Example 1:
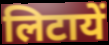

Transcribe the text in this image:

लिटायें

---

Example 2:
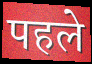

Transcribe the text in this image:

पहले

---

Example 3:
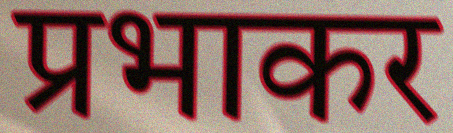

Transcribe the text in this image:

प्रभाकर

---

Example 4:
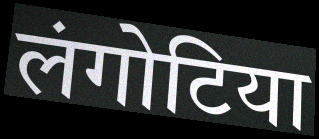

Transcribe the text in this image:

लंगोटिया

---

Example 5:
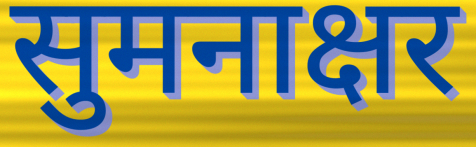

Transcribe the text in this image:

सुमनाक्षर